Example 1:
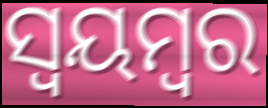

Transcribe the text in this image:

ସ୍ଵୟମ୍ବର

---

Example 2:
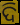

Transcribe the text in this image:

ଦି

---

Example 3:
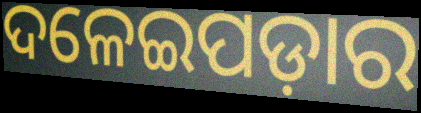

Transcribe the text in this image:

ଦଳେଇପଡ଼ାର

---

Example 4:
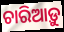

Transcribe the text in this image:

ଚାରିଆଡ଼ୁ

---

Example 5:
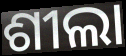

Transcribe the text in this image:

ଶୀଲା